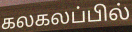
கலகலப்பில்